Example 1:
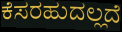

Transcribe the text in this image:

ಕೆಸರಹುದಲ್ಲದೆ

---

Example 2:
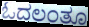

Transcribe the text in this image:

ಓದಲಂತೂ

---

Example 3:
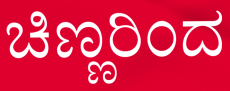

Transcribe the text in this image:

ಚಿಣ್ಣರಿಂದ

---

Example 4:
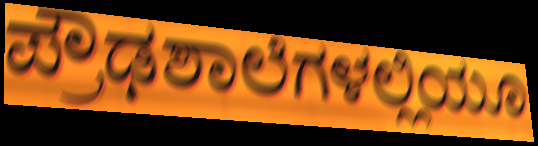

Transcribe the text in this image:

ಪ್ರೌಢಶಾಲೆಗಳಲ್ಲಿಯೂ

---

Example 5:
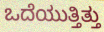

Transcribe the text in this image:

ಒದೆಯುತ್ತಿತ್ತು